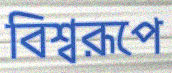
বিশ্বরূপে